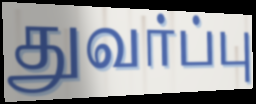
துவர்ப்பு